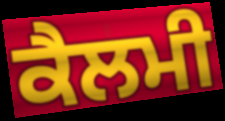
ਕੈਲਮੀ